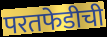
परतफेडीची